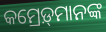
କମ୍ରେଡ଼୍‍ମାନଙ୍କ